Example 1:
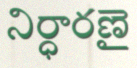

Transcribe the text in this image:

నిర్ధారణై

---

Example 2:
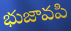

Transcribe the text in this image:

భుజావపి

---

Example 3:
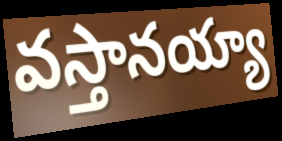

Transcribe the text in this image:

వస్తానయ్యా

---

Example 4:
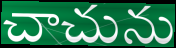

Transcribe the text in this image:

చాచును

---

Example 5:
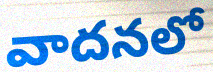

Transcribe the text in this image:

వాదనలో